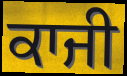
ਕਾਜੀ